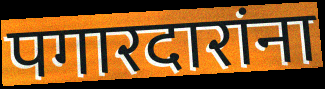
पगारदारांना